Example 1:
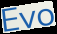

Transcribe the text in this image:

Evo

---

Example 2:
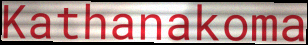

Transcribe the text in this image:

Kathanakoma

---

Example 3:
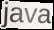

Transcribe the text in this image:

java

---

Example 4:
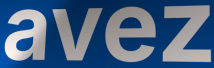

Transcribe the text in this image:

avez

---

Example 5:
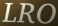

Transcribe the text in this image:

LRO